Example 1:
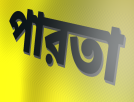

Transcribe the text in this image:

পারতা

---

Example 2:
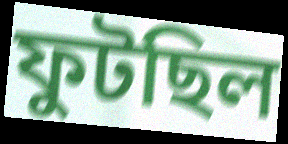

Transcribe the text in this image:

ফুটছিল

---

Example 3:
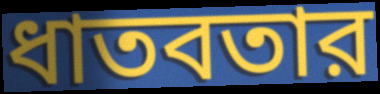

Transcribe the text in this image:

ধাতবতার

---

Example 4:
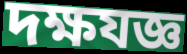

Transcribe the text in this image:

দক্ষযজ্ঞ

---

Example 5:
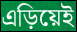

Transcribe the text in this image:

এড়িয়েই